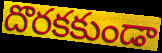
దొరకకుండా